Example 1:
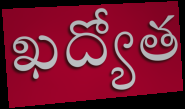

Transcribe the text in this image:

ఖద్యోత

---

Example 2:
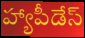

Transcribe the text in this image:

హ్యాపీడేస్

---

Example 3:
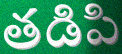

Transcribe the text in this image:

తడిపి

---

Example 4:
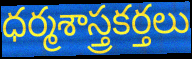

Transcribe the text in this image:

ధర్మశాస్త్రకర్తలు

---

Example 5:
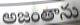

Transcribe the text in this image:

అజంతాను